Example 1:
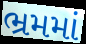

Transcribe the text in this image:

ભ્રમમાં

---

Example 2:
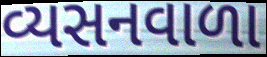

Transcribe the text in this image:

વ્યસનવાળા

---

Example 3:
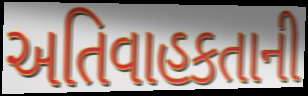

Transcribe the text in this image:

અતિવાહકતાની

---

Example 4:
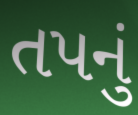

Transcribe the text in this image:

તપનું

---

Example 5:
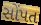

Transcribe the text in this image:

સોંપત